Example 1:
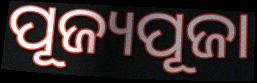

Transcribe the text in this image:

ପୂଜ୍ୟପୂଜା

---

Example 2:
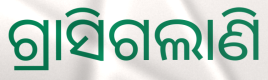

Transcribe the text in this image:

ଗ୍ରାସିଗଲାଣି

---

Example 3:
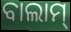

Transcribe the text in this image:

ବାଲାମ୍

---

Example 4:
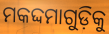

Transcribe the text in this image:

ମକଦ୍ଦମାଗୁଡ଼ିକୁ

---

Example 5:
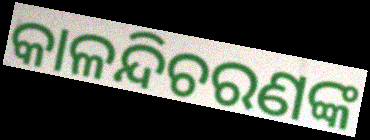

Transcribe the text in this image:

କାଳନ୍ଦିଚରଣଙ୍କ